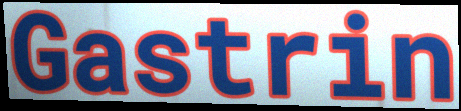
Gastrin